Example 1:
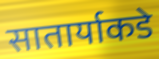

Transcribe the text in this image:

सातार्याकडे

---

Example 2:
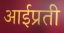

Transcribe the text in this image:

आईप्रती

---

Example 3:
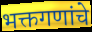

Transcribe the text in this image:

भक्तगणांचे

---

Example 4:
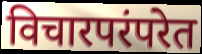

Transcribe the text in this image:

विचारपरंपरेत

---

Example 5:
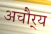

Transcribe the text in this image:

अचौर्य